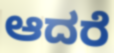
ಆದರೆ